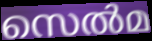
സെൽമ